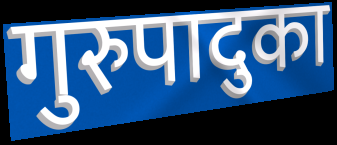
गुरुपादुका